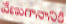
వేణుగానానికి